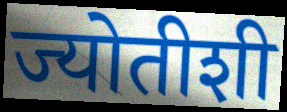
ज्योतीशी